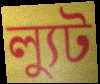
ল্যুট